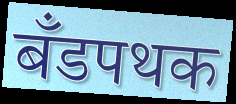
बँडपथक